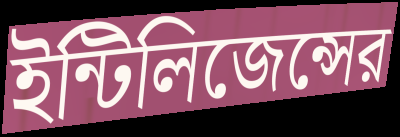
ইন্টিলিজেন্সের